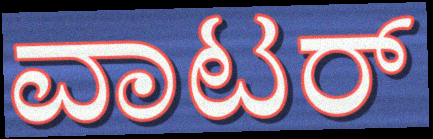
ವಾಟರ್